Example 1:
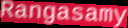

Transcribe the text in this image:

Rangasamy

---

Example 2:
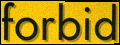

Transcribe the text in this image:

forbid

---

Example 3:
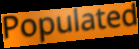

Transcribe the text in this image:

Populated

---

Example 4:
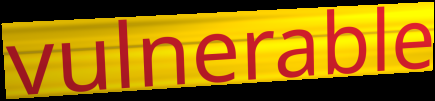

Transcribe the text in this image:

vulnerable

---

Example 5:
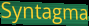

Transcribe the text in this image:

Syntagma